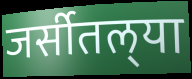
जर्सीतल्या